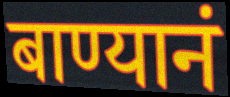
बाण्यानं